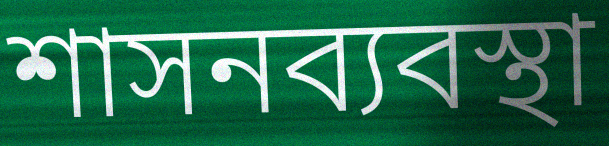
শাসনব্যবস্থা